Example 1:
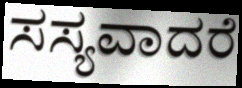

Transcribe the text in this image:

ಸಸ್ಯವಾದರೆ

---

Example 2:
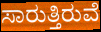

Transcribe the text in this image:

ಸಾರುತ್ತಿರುವೆ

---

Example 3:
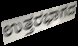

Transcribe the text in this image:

ಉತ್ತರಭಾಗದ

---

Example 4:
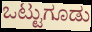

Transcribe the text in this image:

ಒಟ್ಟುಗೂಡು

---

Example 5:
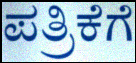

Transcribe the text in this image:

ಪತ್ರಿಕೆಗೆ